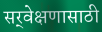
सर्वेक्षणासाठी